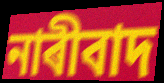
নাৰীবাদ